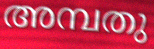
അമ്പതു